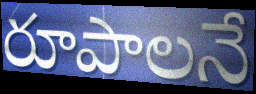
రూపాలనే